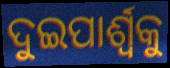
ଦୁଇପାର୍ଶ୍ବକୁ